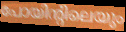
പോയിന്റിലെയും